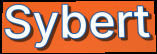
Sybert